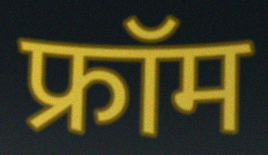
फ्रॉम